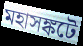
মহাসঙ্কটে